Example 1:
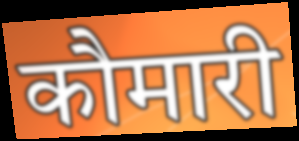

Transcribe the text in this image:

कौमारी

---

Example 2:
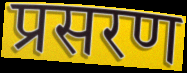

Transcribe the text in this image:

प्रसरण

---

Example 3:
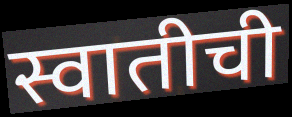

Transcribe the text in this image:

स्वातीची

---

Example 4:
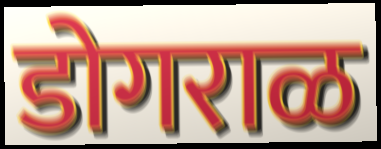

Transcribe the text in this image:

डोगराळ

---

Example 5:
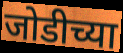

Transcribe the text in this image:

जोडीच्या